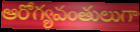
ఆరోగ్యవంతులుగా